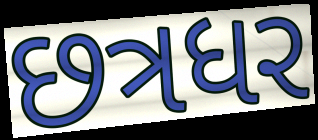
છત્રધર